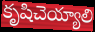
కృషిచెయ్యాలి